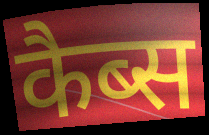
कैब्स